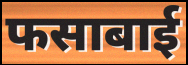
फसाबाई